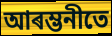
আৰম্ভনীতে